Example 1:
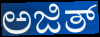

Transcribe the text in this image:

ಅಜಿತ್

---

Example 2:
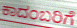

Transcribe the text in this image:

ಕಾದಂಬರಿಗೆ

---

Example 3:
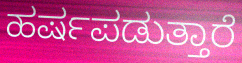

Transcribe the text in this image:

ಹರ್ಷಪಡುತ್ತಾರೆ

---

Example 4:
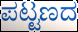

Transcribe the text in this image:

ಪಟ್ಟಣದ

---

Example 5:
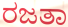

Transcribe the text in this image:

ರಜತಾ